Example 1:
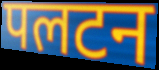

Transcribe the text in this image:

पलटन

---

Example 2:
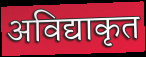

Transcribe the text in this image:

अविद्याकृत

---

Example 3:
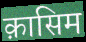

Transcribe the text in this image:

क़ासिम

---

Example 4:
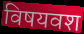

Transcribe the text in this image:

विषयवश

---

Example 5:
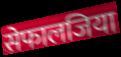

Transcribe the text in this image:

सेफालजिया